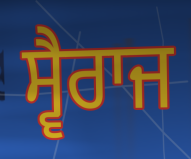
ਸ੍ਵੈਰਾਜ